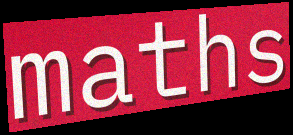
maths